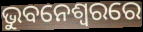
ଭୁବନେଶ୍ୱରରେ